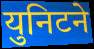
युनिटने